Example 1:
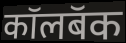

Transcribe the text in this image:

कॉलबॅक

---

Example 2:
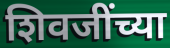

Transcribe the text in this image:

शिवजींच्या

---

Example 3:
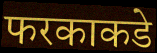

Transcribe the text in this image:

फरकाकडे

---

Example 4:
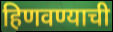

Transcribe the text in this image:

हिणवण्याची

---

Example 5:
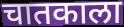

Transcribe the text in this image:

चातकाला